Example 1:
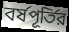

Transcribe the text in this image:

বর্ষপূর্তির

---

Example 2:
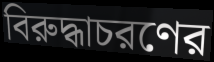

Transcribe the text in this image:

বিরুদ্ধাচরণের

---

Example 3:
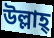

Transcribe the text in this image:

উল্লাহ্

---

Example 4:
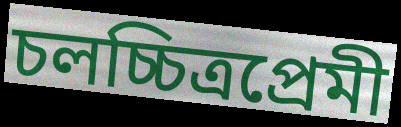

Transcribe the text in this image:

চলচ্চিত্রপ্রেমী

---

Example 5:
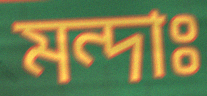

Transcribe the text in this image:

মন্দাঃ